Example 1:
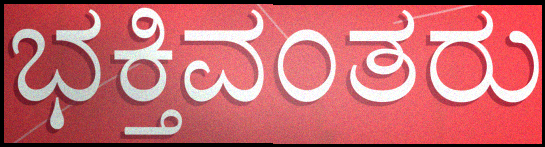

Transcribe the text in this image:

ಭಕ್ತಿವಂತರು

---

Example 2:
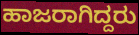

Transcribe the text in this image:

ಹಾಜರಾಗಿದ್ದರು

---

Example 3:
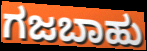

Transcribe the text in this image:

ಗಜಬಾಹು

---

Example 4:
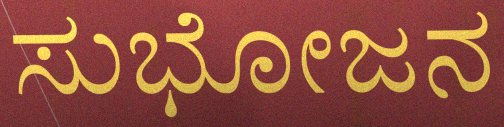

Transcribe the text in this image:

ಸುಭೋಜನ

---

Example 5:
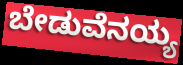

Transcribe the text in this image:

ಬೇಡುವೆನಯ್ಯ